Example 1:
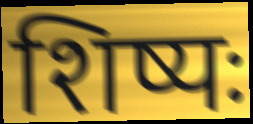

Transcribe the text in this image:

शिष्यः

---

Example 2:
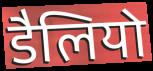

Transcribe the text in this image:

डैलियो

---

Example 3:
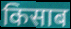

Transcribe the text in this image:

किसाब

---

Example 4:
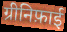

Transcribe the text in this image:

ग्रीनिफ़ाई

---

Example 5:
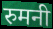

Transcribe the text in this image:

रुमनी